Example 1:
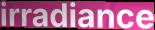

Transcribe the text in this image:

irradiance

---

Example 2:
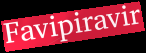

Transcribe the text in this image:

Favipiravir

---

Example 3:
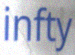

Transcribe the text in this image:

infty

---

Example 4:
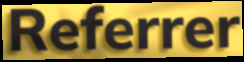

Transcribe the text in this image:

Referrer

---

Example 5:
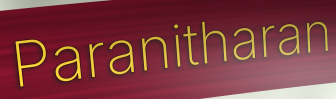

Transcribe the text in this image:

Paranitharan